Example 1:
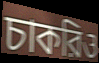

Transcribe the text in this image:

চাকরিও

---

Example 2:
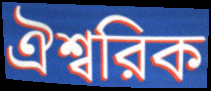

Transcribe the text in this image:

ঐশ্বরিক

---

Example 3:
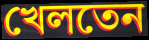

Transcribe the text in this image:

খেলতেন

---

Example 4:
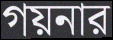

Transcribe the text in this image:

গয়নার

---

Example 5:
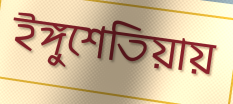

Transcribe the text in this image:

ইঙ্গুশেতিয়ায়